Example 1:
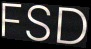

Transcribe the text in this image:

FSD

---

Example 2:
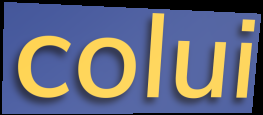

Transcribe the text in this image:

colui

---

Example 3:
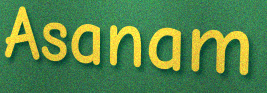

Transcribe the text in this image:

Asanam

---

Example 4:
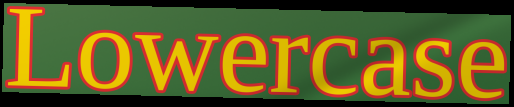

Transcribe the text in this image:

Lowercase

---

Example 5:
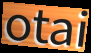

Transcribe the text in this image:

otai